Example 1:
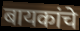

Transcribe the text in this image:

बायकांचे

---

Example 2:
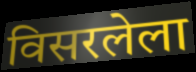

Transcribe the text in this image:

विसरलेला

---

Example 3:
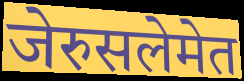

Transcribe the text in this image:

जेरुसलेमेत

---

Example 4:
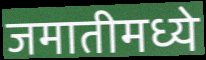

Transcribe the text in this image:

जमातीमध्ये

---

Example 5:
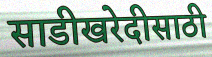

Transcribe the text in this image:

साडीखरेदीसाठी